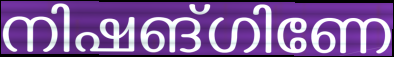
നിഷങ്ഗിണേ